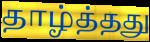
தாழ்த்தது